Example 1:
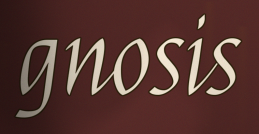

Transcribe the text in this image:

gnosis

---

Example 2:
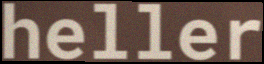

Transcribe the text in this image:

heller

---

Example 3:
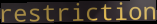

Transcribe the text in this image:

restriction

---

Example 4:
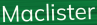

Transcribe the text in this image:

Maclister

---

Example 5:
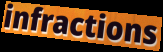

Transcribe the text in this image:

infractions